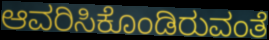
ಆವರಿಸಿಕೊಂಡಿರುವಂತೆ